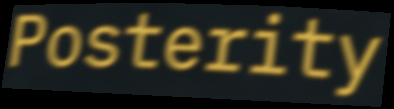
Posterity